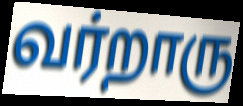
வர்றாரு